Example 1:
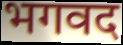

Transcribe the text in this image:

भगवद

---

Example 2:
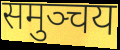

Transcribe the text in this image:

समुञ्चय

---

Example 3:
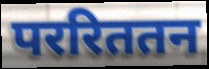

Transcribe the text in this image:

पररिततन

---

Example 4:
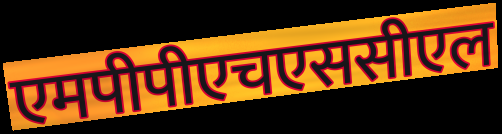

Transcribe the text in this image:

एमपीपीएचएससीएल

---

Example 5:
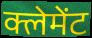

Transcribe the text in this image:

क्लेमेंट